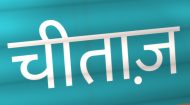
चीताज़